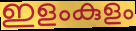
ഇളംകുളം